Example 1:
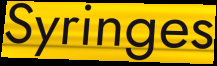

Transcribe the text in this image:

Syringes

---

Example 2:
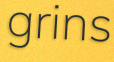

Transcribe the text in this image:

grins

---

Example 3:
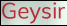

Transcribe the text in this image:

Geysir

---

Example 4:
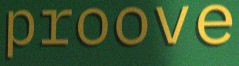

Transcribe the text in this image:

proove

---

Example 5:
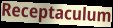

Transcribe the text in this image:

Receptaculum